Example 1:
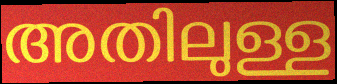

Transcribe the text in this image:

അതിലുള്ള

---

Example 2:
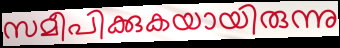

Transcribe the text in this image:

സമീപിക്കുകയായിരുന്നു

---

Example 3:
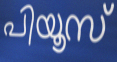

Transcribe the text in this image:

പിയൂസ്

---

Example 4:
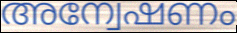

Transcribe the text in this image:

അന്വേഷണം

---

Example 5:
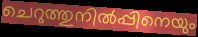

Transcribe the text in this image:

ചെറുത്തുനിൽപ്പിനെയും